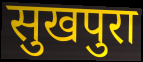
सुखपुरा